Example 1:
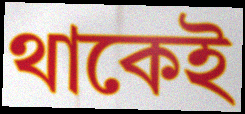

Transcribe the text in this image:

থাকেই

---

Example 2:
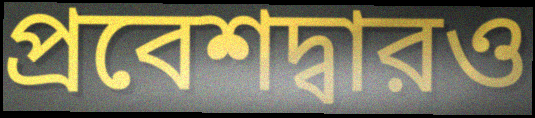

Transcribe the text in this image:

প্রবেশদ্বারও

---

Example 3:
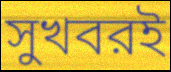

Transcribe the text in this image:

সুখবরই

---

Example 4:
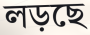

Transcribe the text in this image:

লড়ছে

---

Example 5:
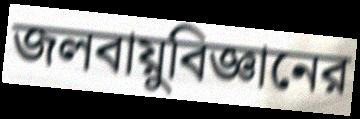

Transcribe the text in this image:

জলবায়ুবিজ্ঞানের